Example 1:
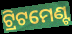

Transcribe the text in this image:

ଟ୍ରିଟମେଣ୍ଟ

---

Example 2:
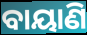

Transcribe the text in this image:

ବାୟାଣି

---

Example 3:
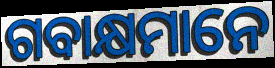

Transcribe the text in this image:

ଗବାକ୍ଷମାନେ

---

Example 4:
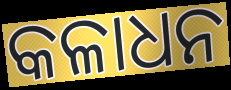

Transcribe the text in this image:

କଳାଧନ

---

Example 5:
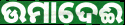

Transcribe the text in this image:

ଉମାଦେଈ